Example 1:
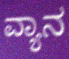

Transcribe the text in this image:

ವ್ಯಾನ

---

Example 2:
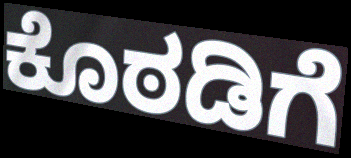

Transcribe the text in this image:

ಕೊಠಡಿಗೆ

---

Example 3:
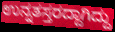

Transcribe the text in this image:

ಉನ್ನತಸ್ತರದ್ದಾಗಿದ್ದು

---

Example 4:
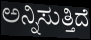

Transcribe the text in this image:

ಅನ್ನಿಸುತ್ತಿದೆ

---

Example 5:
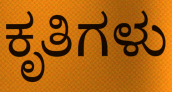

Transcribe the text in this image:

ಕೃತಿಗಳು